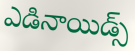
ఎడినాయిడ్స్